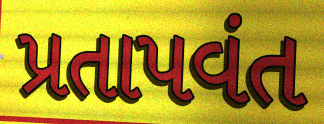
પ્રતાપવંત